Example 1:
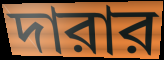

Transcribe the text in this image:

দারার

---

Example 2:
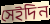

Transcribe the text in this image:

সেইদিন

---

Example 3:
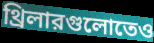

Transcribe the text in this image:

থ্রিলারগুলোতেও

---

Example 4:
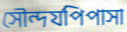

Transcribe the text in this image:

সৌন্দর্যপিপাসা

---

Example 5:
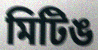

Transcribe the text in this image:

মিটিঙ